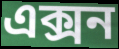
এক্সন